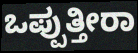
ಒಪ್ಪುತ್ತೀರಾ